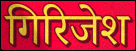
गिरिजेश